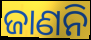
ଜାଣନି